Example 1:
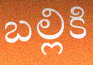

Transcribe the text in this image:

బల్లికి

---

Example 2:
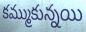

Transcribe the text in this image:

కమ్ముకున్నయి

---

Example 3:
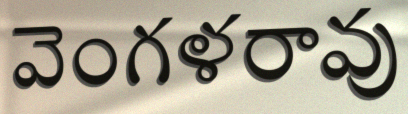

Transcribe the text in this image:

వెంగళరావు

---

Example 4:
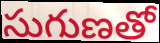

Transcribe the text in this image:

సుగుణతో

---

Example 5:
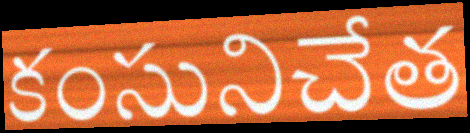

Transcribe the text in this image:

కంసునిచేత